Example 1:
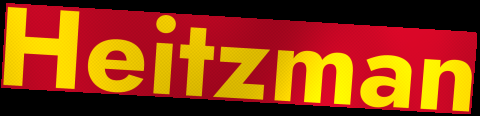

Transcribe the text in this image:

Heitzman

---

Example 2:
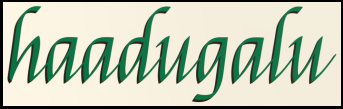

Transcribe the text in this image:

haadugalu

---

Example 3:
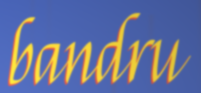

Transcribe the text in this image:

bandru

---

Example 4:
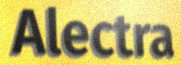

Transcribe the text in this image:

Alectra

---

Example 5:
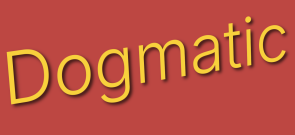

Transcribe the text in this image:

Dogmatic